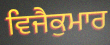
ਵਿਜੈਕੁਮਾਰ